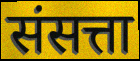
संसत्ता